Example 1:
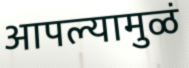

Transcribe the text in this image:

आपल्यामुळं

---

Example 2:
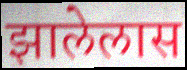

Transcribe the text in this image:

झालेलास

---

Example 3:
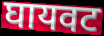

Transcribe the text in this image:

घायवट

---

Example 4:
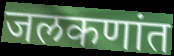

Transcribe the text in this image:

जलकणांत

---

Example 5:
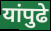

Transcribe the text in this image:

यांपुढे